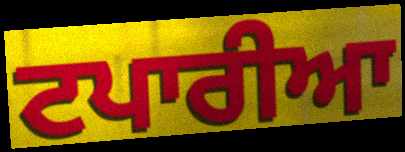
ਟਪਾਰੀਆ